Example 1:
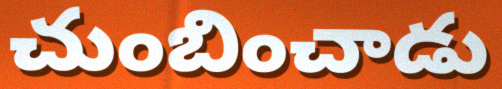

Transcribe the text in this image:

చుంబించాడు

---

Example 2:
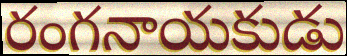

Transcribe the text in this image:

రంగనాయకుడు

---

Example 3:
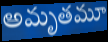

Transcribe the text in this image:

అమృతమూ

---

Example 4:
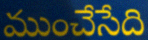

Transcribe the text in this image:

ముంచేసేది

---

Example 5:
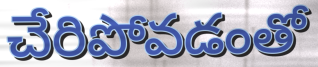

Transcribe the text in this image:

చేరిపోవడంతో